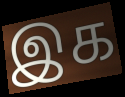
இக